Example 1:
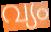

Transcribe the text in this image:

വ്യം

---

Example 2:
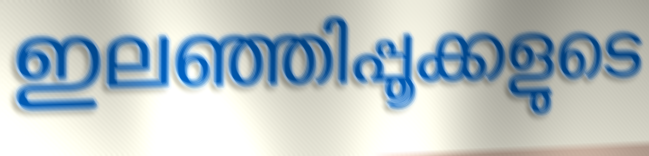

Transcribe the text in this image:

ഇലഞ്ഞിപ്പൂക്കളുടെ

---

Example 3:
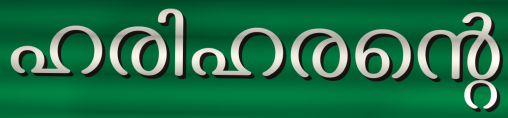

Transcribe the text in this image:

ഹരിഹരന്റെ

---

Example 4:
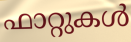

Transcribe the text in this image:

ഫാറ്റുകൾ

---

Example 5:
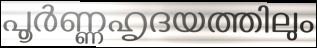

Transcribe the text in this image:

പൂർണ്ണഹൃദയത്തിലും